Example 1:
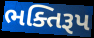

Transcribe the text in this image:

ભક્તિરૂપ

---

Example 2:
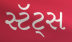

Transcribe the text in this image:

સ્ટૅટ્સ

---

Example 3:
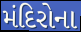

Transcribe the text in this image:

મંદિરોના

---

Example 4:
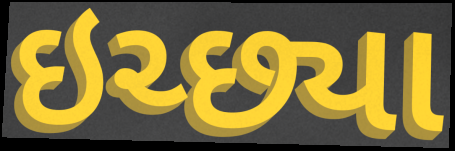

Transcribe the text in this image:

ઇચ્છ્યા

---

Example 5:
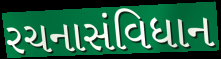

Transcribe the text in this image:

રચનાસંવિધાન